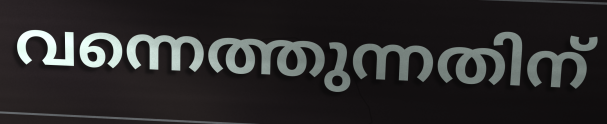
വന്നെത്തുന്നതിന്